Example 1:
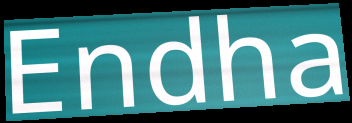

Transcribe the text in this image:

Endha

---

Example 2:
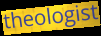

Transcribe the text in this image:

theologist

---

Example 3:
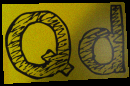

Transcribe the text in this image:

Qd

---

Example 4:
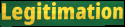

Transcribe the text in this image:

Legitimation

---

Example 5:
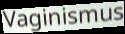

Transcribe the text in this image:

Vaginismus